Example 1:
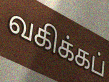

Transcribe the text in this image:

வகிக்கப்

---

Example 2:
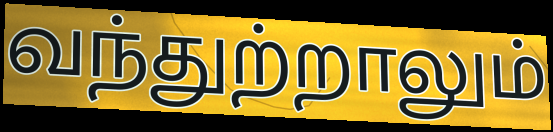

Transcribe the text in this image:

வந்துற்றாலும்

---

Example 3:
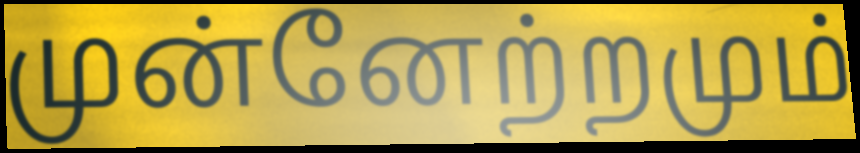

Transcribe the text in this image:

முன்னேற்றமும்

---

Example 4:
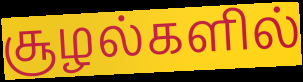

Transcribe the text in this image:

சூழல்களில்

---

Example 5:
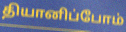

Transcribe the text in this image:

தியானிப்போம்